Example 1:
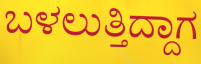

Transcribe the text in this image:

ಬಳಲುತ್ತಿದ್ದಾಗ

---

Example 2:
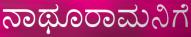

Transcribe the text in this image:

ನಾಥೂರಾಮನಿಗೆ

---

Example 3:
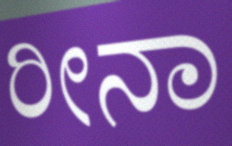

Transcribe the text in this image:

ರೀನಾ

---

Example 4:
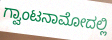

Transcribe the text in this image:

ಗ್ವಾಂಟನಾಮೋದಲ್ಲಿ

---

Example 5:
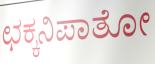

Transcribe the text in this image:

ಛಕ್ಕನಿಪಾತೋ